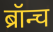
ब्रॉन्च